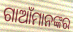
ଗାଆଁମାନଙ୍କର